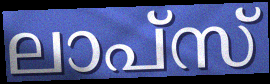
ലാപ്സ്